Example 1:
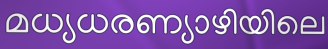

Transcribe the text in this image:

മധ്യധരണ്യാഴിയിലെ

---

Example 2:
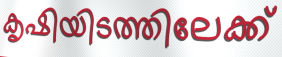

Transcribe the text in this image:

കൃഷിയിടത്തിലേക്ക്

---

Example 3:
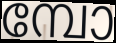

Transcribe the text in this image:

മ്പോ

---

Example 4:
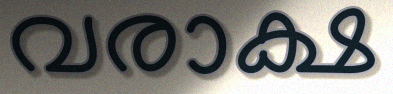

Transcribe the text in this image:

വരാക്ഷ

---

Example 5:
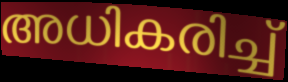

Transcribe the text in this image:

അധികരിച്ച്